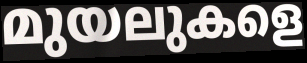
മുയലുകളെ